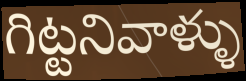
గిట్టనివాళ్ళు